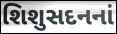
શિશુસદનનાં